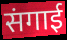
संगाई